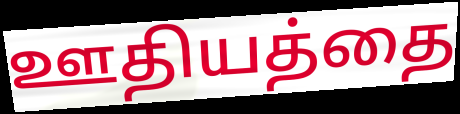
ஊதியத்தை